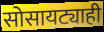
सोसायट्याही